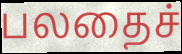
பலதைச்